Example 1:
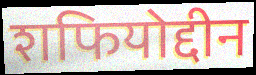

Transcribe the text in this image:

शफियोद्दीन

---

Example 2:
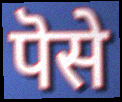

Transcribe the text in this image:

पॆसे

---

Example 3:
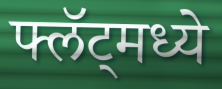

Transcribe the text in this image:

फ्लॅट्मध्ये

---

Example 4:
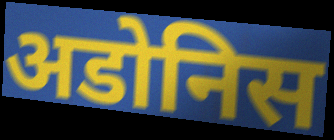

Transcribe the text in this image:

अडोनिस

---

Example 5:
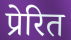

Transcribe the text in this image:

प्रेरित